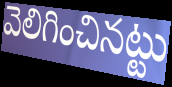
వెలిగించినట్టు